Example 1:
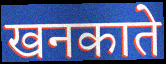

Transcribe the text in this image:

खनकाते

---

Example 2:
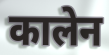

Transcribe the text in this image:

कालेन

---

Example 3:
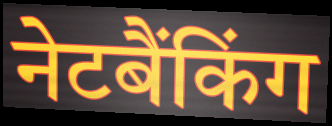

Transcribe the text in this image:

नेटबैंकिंग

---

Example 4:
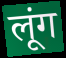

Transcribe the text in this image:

लूंग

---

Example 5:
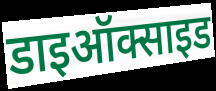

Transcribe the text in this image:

डाइऑक्साइड